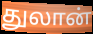
துலான்